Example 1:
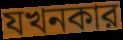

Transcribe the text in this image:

যখনকার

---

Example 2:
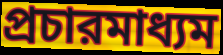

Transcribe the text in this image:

প্রচারমাধ্যম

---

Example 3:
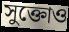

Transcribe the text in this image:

সুক্তোও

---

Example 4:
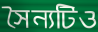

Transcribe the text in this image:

সৈন্যটিও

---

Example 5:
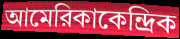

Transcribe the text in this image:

আমেরিকাকেন্দ্রিক